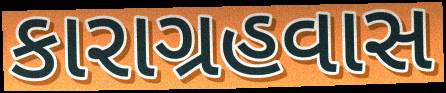
કારાગ્રહવાસ